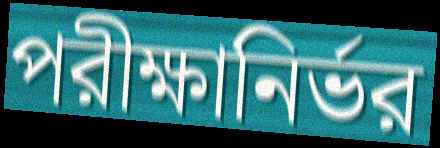
পরীক্ষানির্ভর